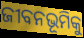
ଜୀବନଭୂମିକୁ